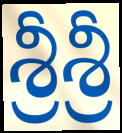
శ్రీశ్రీ